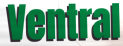
Ventral